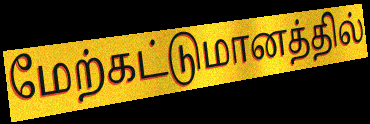
மேற்கட்டுமானத்தில்